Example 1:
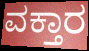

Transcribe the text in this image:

ವಕ್ತಾರ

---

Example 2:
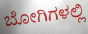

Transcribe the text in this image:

ಬೋಗಿಗಳಲ್ಲಿ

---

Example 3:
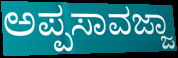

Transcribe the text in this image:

ಅಪ್ಪಸಾವಜ್ಜಾ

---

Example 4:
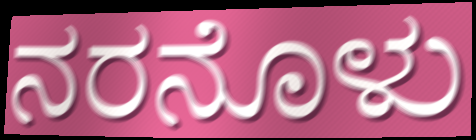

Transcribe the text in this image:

ನರನೊಳು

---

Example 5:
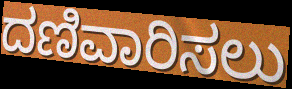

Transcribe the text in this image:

ದಣಿವಾರಿಸಲು